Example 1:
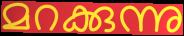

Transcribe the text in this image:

മറക്കുന്നു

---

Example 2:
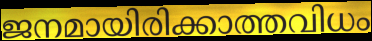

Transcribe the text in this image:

ജനമായിരിക്കാത്തവിധം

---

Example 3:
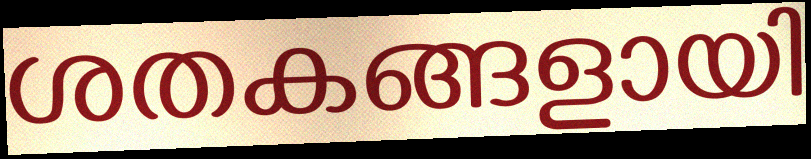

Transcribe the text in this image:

ശതകങ്ങളായി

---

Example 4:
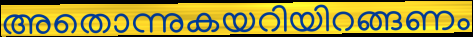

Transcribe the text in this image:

അതൊന്നുകയറിയിറങ്ങണം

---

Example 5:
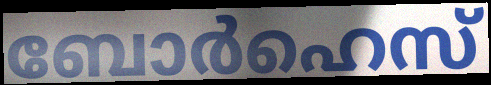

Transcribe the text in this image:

ബോർഹെസ്